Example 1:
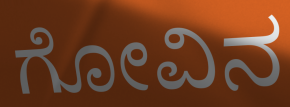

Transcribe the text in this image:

ಗೋವಿನ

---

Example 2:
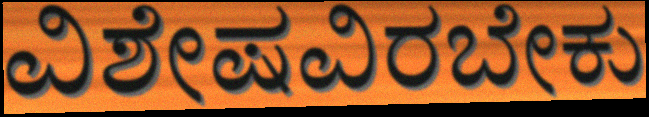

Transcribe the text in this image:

ವಿಶೇಷವಿರಬೇಕು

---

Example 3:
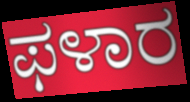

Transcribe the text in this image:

ಫಳಾರ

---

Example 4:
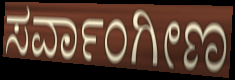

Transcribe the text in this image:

ಸರ್ವಾಂಗೀಣ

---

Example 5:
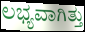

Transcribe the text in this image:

ಲಭ್ಯವಾಗಿತ್ತು